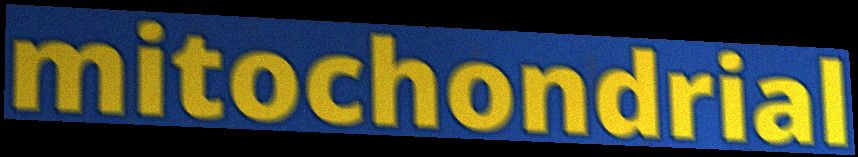
mitochondrial